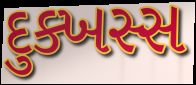
દુક્ખસ્સ